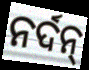
ନର୍ଦନ୍